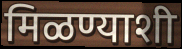
मिळण्याशी